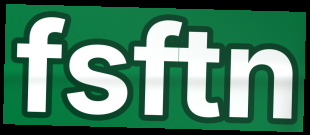
fsftn